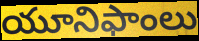
యూనిఫాంలు